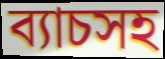
ব্যাচসহ